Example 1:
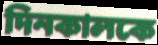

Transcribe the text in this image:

দিনকালকে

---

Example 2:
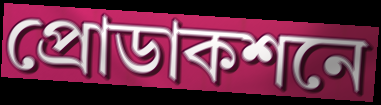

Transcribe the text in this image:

প্রোডাকশনে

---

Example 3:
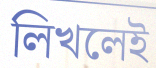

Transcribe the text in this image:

লিখলেই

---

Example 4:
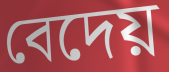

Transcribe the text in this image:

বেদেয়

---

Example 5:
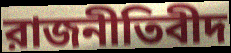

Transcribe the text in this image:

রাজনীতিবীদ